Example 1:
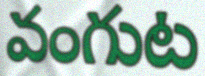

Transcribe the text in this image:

వంగుట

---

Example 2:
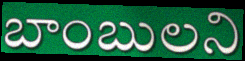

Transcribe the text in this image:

బాంబులని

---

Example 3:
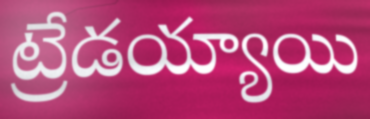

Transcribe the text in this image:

ట్రేడయ్యాయి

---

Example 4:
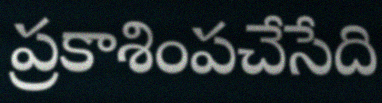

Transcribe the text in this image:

ప్రకాశింపచేసేది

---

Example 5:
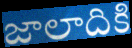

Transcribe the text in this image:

జాలాదికి